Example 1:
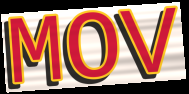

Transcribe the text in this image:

MOV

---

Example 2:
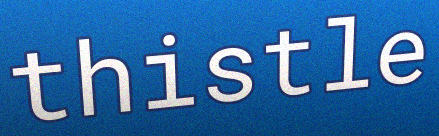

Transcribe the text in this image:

thistle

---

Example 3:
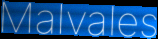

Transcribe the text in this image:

Malvales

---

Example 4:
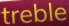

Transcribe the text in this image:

treble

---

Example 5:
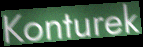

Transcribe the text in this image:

Konturek